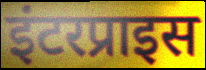
इंटरप्राइस